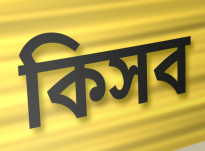
কিসব